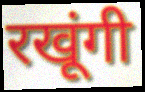
रखूंगी